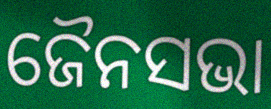
ଜୈନସଭା